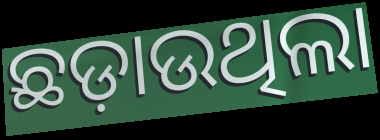
ଛଡ଼ାଉଥିଲା